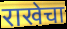
राखेचा